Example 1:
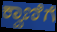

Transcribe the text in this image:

ಕ್ವಾಣಿಗೆ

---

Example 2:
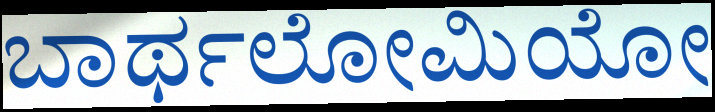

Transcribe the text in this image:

ಬಾರ್ಥಲೋಮಿಯೋ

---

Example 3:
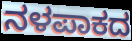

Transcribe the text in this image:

ನಳಪಾಕದ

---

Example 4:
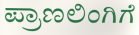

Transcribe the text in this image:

ಪ್ರಾಣಲಿಂಗಿಗೆ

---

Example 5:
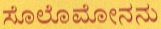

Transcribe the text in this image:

ಸೊಲೊಮೋನನು